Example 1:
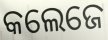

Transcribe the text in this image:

କଲେଜେ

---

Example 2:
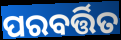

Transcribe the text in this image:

ପରବର୍ତ୍ତିତ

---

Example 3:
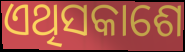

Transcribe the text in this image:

ଏଥିସକାଶେ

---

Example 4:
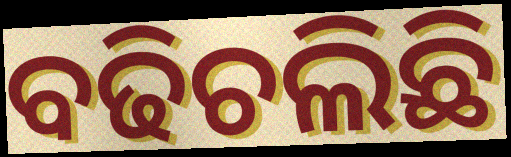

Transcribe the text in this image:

ବଢିଚଲିଛି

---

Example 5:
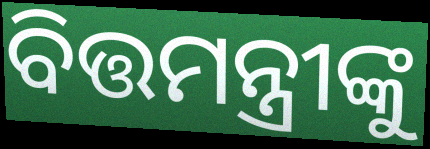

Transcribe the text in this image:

ବିତ୍ତମନ୍ତ୍ରୀଙ୍କୁ